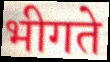
भीगते